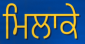
ਮਿਲਾਕੇ